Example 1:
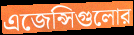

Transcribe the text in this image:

এজেন্সিগুলোর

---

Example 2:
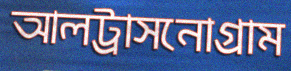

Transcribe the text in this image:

আলট্রাসনোগ্রাম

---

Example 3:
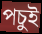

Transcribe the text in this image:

পচুই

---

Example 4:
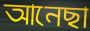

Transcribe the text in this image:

আনেছা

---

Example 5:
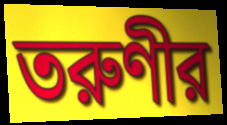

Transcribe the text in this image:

তরুণীর